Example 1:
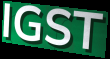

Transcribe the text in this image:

IGST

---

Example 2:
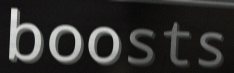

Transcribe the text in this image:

boosts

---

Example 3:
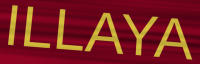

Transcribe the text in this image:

ILLAYA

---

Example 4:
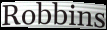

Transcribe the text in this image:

Robbins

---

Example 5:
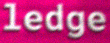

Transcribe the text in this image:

ledge